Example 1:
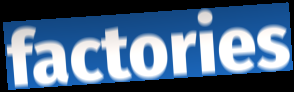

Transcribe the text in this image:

factories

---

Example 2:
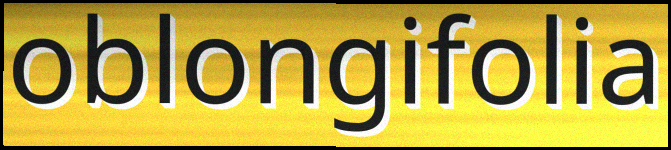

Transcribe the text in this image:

oblongifolia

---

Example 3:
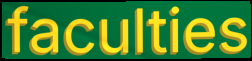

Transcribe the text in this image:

faculties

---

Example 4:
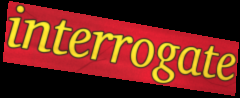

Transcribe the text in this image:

interrogate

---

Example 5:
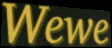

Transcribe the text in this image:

Wewe